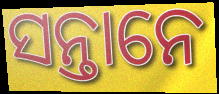
ସନ୍ତାନେ